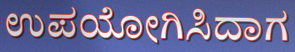
ಉಪಯೋಗಿಸಿದಾಗ